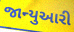
જાન્યુઆરી